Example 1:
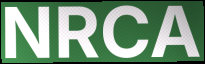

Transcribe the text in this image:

NRCA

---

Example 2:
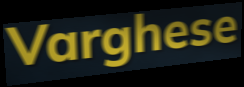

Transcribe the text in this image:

Varghese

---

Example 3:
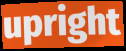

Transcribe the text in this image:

upright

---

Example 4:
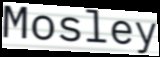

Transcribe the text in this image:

Mosley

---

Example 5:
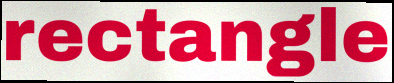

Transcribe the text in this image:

rectangle